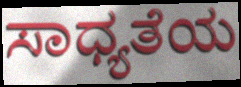
ಸಾಧ್ಯತೆಯ